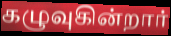
கழுவுகின்றார்